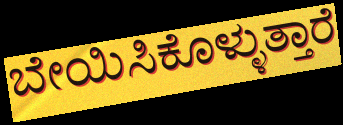
ಬೇಯಿಸಿಕೊಳ್ಳುತ್ತಾರೆ